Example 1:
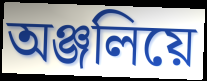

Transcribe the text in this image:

অঞ্জলিয়ে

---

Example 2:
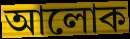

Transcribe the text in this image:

আলোক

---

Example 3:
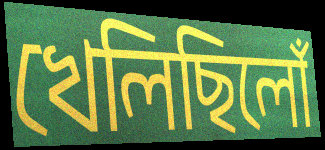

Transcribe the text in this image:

খেলিছিলোঁ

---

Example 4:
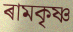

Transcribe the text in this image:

ৰামকৃষ্ণ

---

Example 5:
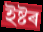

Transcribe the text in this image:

ইষ্টৰ